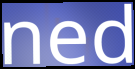
ned